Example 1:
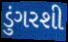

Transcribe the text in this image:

ડુંગરશી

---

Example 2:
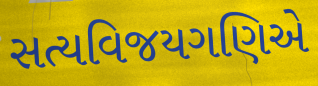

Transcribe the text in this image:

સત્યવિજયગણિએ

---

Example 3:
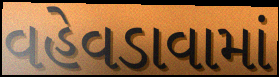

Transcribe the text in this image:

વહેવડાવામાં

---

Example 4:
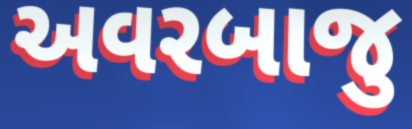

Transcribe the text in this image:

અવરબાજુ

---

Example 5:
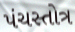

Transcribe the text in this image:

પંચસ્તોત્ર